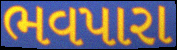
ભવપારા